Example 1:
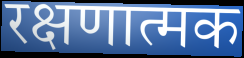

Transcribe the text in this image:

रक्षणात्मक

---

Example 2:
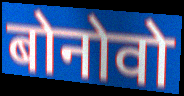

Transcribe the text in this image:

बोनोवो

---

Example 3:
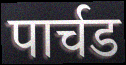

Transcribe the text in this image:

पार्चड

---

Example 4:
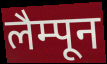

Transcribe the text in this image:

लैम्पून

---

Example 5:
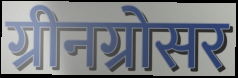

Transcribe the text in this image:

ग्रीनग्रोसर